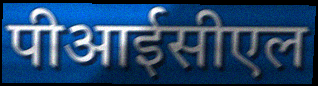
पीआईसीएल